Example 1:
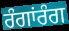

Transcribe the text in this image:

ਰੰਗਾਂਰੰਗ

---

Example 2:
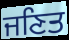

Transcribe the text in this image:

ਜਣਿਤ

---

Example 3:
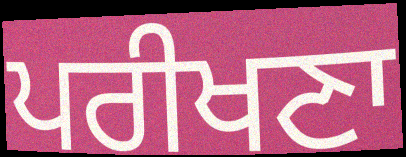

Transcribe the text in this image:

ਪਰੀਖਣਾ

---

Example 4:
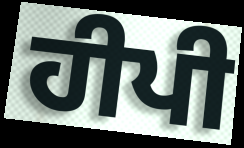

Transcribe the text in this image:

ਹੀਪੀ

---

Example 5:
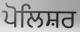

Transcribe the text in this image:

ਪੋਲਿਸ਼ਰ